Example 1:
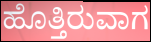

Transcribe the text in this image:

ಹೊತ್ತಿರುವಾಗ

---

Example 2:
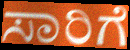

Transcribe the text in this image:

ಸಾರಿಗೆ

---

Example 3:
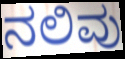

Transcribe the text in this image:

ನಲಿವು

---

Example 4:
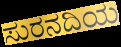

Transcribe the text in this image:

ಸುರನದಿಯ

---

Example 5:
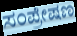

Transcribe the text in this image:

ಸಂಪ್ರೇಷಣ